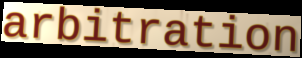
arbitration